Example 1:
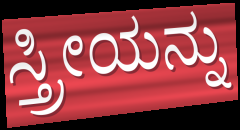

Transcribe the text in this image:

ಸ್ತ್ರೀಯನ್ನು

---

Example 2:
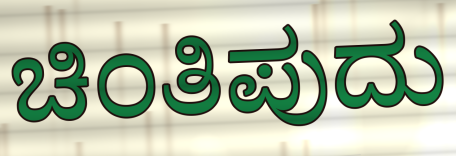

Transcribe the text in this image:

ಚಿಂತಿಪುದು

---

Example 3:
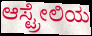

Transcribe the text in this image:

ಆಸ್ಟ್ರೇಲಿಯ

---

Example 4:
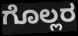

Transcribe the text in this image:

ಗೊಲ್ಲರ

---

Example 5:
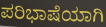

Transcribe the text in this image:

ಪರಿಭಾಷೆಯಾಗಿ